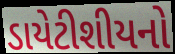
ડાયેટીશીયનો